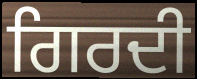
ਗਿਰਦੀ